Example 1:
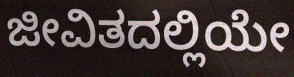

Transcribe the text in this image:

ಜೀವಿತದಲ್ಲಿಯೇ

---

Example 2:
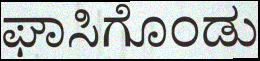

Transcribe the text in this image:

ಘಾಸಿಗೊಂಡು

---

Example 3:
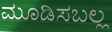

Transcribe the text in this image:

ಮೂಡಿಸಬಲ್ಲ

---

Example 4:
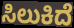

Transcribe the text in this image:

ಸಿಲುಕಿದೆ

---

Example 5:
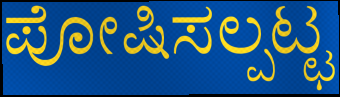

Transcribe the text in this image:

ಪೋಷಿಸಲ್ಪಟ್ಟ